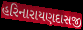
હરિનારાયણદાસજી